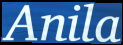
Anila